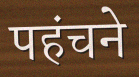
पहंचने